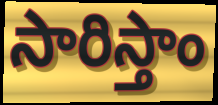
సారిస్తాం